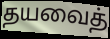
தயவைத்